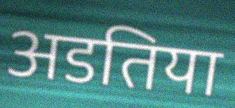
अडतिया